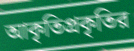
আকৃতিপ্রকৃতির